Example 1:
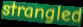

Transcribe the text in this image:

strangled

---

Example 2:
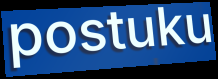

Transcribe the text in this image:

postuku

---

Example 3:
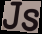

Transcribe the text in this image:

Js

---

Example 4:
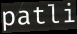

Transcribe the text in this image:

patli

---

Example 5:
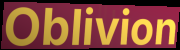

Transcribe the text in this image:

Oblivion